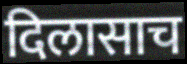
दिलासाच